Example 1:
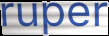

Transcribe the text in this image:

ruper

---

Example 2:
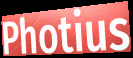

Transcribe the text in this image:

Photius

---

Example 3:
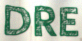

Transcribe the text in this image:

DRE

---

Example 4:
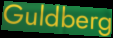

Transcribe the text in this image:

Guldberg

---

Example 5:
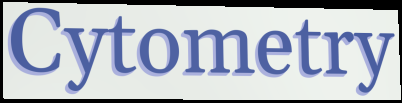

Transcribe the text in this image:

Cytometry